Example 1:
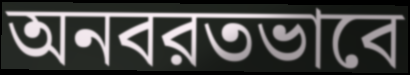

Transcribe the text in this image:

অনবরতভাবে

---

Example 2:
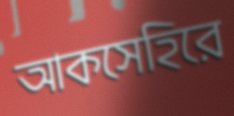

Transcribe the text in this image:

আকসেহিরে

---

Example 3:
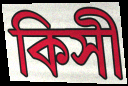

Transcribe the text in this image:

কিসী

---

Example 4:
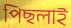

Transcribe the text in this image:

পিছলাই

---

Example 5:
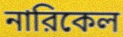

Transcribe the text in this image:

নারিকেল